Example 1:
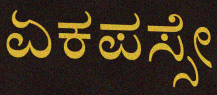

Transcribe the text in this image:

ಏಕಪಸ್ಸೇ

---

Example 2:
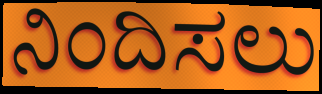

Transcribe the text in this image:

ನಿಂದಿಸಲು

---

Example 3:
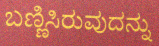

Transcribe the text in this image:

ಬಣ್ಣಿಸಿರುವುದನ್ನು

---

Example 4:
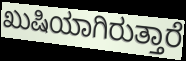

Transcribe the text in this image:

ಖುಷಿಯಾಗಿರುತ್ತಾರೆ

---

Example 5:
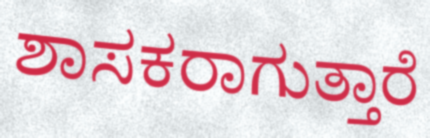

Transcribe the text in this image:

ಶಾಸಕರಾಗುತ್ತಾರೆ